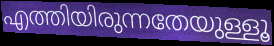
എത്തിയിരുന്നതേയുള്ളൂ